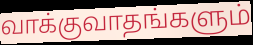
வாக்குவாதங்களும்